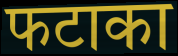
फटाका